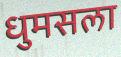
धुमसला